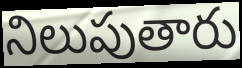
నిలుపుతారు